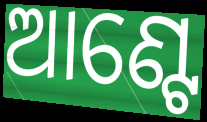
ଆଣ୍ଟେ